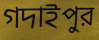
গদাইপুর